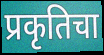
प्रकृतिचा